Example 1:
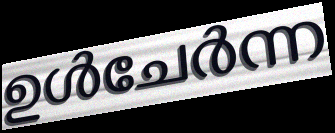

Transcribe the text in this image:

ഉൾചേർന്ന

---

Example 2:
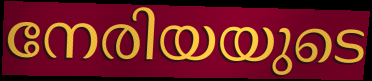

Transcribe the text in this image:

നേരിയയുടെ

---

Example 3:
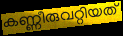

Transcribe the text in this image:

കണ്ണീരുവറ്റിയത്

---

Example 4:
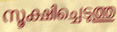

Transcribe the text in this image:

സൂക്ഷിച്ചെടുത്തു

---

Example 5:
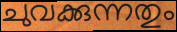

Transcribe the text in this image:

ചുവക്കുന്നതും